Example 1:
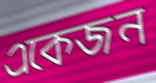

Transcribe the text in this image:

একেজন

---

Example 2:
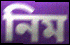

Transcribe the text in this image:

নিম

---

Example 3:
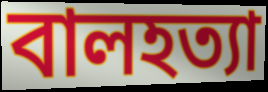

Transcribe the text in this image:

বালহত্যা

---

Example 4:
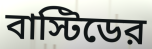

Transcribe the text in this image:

বাস্টিডের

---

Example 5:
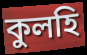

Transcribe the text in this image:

কুলহি